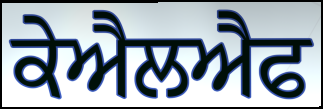
ਕੇਐਲਐਫ